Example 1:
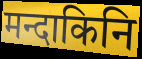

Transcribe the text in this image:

मन्दाकिनि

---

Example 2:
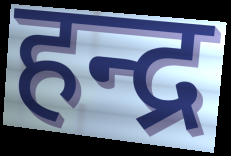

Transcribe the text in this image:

हन्द्र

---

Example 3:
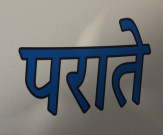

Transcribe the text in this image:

पराते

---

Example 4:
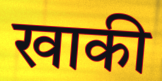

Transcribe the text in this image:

खाकी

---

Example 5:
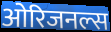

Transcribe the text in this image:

ओरिजनल्स